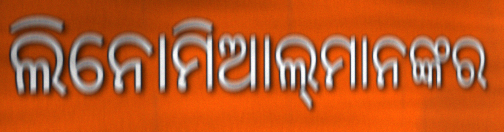
ଲିନୋମିଆଲ୍‌ମାନଙ୍କର